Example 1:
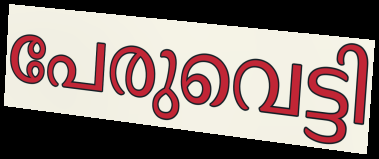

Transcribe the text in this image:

പേരുവെട്ടി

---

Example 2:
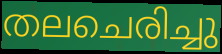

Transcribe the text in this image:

തലചെരിച്ചു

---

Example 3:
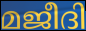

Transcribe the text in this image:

മജീദി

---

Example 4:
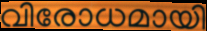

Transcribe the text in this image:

വിരോധമായി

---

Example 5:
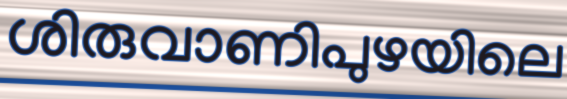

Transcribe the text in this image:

ശിരുവാണിപുഴയിലെ